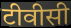
टीवीसी